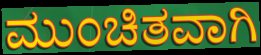
ಮುಂಚಿತವಾಗಿ